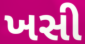
ખસી